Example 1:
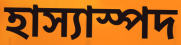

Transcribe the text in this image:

হাস্যাস্পদ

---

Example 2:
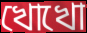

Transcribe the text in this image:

খোখো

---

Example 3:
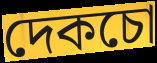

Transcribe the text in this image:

দেকচো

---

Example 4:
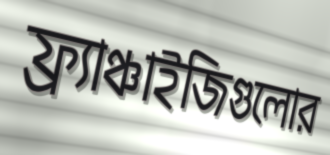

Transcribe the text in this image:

ফ্র্যাঞ্চাইজিগুলোর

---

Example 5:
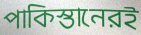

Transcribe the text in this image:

পাকিস্তানেরই